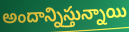
అందాన్నిస్తున్నాయి